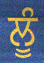
ਲੂੰ